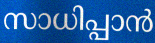
സാധിപ്പാൻ